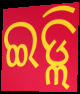
ଇଡ୍ଲି